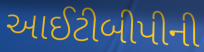
આઈટીબીપીની